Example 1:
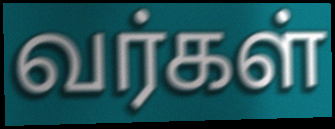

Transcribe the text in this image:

வர்கள்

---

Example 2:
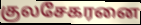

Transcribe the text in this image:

குலசேகரனை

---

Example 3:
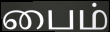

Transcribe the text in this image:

பைம்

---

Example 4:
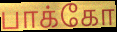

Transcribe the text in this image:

பாக்கோ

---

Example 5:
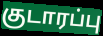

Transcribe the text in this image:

குடாரப்பு